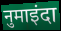
नुमाइंदा